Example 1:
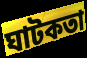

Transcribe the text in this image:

ঘাটকতা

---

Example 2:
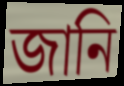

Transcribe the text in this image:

জানি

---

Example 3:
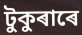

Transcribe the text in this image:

টুকুৰাৰে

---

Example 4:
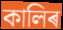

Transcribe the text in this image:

কালিৰ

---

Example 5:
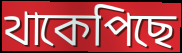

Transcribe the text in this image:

থাকেপিছে